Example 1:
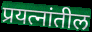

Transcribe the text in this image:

प्रयत्नांतील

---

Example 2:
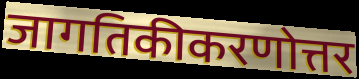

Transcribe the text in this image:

जागतिकीकरणोत्तर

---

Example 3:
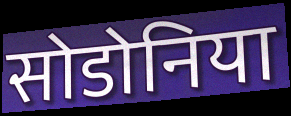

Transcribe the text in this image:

सोडोनिया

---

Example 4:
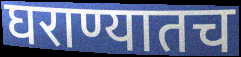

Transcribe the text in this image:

घराण्यातच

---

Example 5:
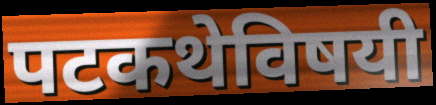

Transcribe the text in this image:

पटकथेविषयी